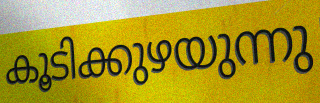
കൂടിക്കുഴയുന്നു